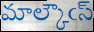
మాల్కౌఁస్